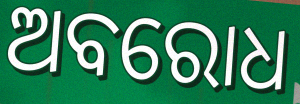
ଅବରୋଧ